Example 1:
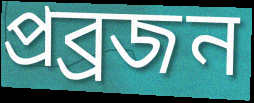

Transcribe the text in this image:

প্রব্রজন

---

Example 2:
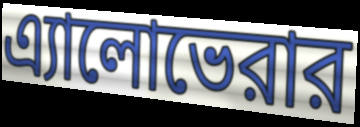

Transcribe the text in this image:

এ্যালোভেরার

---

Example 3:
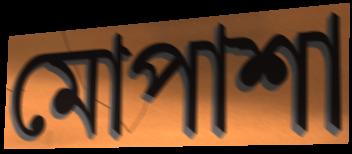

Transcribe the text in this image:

মোপাশা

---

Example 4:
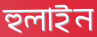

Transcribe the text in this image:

হুলাইন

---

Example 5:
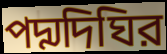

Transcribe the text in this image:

পদ্মদিঘির